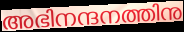
അഭിനന്ദനത്തിനു